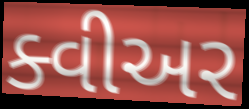
ક્વીઅર